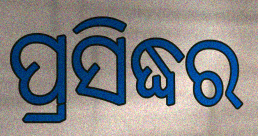
ପ୍ରସିଦ୍ଧର